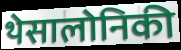
थेसालोनिकी